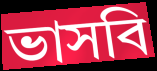
ভাসবি